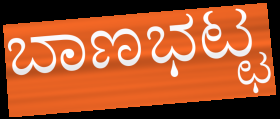
ಬಾಣಭಟ್ಟ